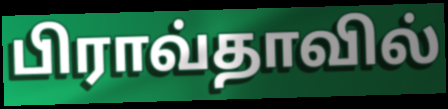
பிராவ்தாவில்